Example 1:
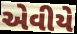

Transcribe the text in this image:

એવીયે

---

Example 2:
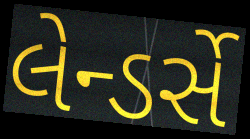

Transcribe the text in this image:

લેન્ડર્સે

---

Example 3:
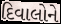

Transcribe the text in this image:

દિવાલોને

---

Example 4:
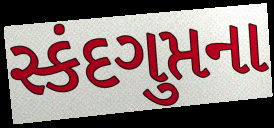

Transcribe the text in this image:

સ્કંદગુપ્તના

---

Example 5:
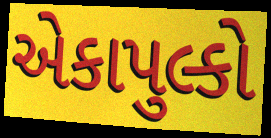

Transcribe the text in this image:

એકાપુલ્કો